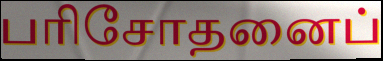
பரிசோதனைப்